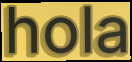
hola